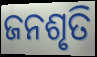
ଜନଶୃତି